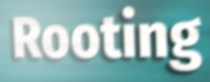
Rooting